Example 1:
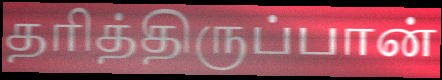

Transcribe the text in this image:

தரித்திருப்பான்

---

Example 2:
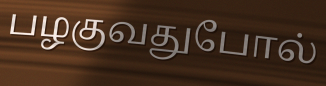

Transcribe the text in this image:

பழகுவதுபோல்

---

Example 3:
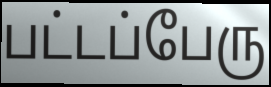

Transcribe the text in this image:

பட்டப்பேரு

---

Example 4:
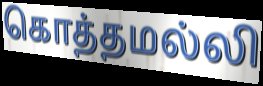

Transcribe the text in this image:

கொத்தமல்லி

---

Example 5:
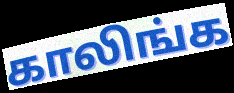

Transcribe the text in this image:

காலிங்க